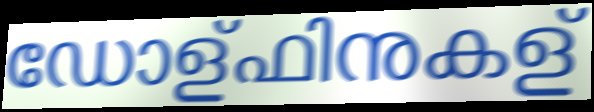
ഡോള്ഫിനുകള്